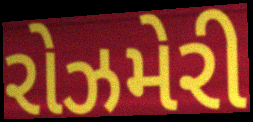
રોઝમેરી